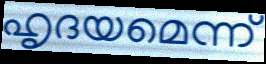
ഹൃദയമെന്ന്